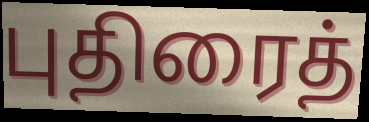
புதிரைத்